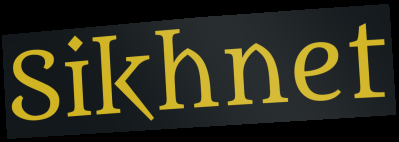
Sikhnet